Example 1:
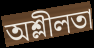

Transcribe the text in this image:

অশ্লীলতা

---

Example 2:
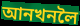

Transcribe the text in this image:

আনখনলৈ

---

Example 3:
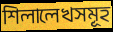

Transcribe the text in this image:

শিলালেখসমূহ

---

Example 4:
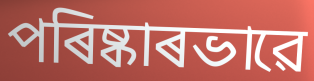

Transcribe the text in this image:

পৰিষ্কাৰভাৱে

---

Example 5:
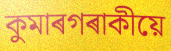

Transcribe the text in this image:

কুমাৰগৰাকীয়ে